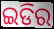
ଇଡିର